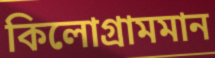
কিলোগ্ৰামমান